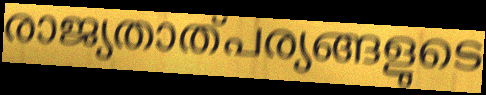
രാജ്യതാത്പര്യങ്ങളുടെ